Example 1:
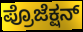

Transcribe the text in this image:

ಪ್ರೊಜೆಕ್ಷನ್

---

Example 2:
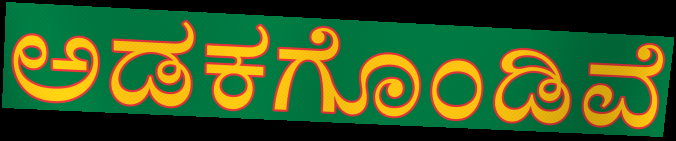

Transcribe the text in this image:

ಅಡಕಗೊಂಡಿವೆ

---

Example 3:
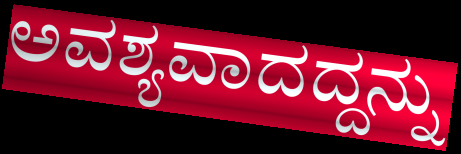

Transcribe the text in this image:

ಅವಶ್ಯವಾದದ್ದನ್ನು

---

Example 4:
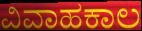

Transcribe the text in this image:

ವಿವಾಹಕಾಲ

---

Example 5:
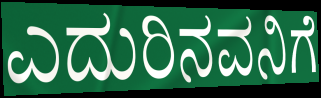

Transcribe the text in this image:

ಎದುರಿನವನಿಗೆ